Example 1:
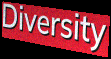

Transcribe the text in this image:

Diversity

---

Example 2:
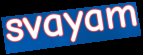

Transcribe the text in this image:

svayam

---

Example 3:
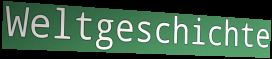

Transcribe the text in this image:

Weltgeschichte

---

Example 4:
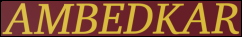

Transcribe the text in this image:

AMBEDKAR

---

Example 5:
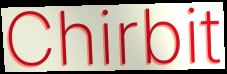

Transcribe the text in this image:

Chirbit